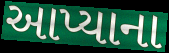
આપ્યાના